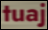
tuaj